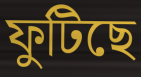
ফুটিছে